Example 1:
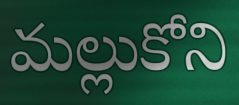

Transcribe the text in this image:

మల్లుకోని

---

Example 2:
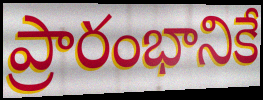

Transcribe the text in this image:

ప్రారంభానికే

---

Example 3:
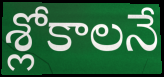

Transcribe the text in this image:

శ్లోకాలనే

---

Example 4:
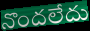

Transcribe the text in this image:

నొందలేదు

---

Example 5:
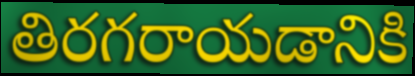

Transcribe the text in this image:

తిరగరాయడానికి